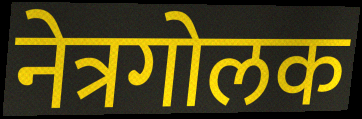
नेत्रगोलक